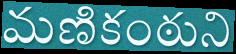
మణికంఠుని